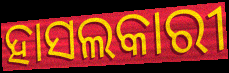
ହାସଲକାରୀ